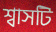
শ্বাসটি